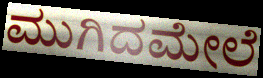
ಮುಗಿದಮೇಲೆ